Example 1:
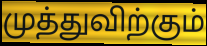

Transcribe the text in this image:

முத்துவிற்கும்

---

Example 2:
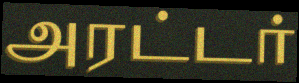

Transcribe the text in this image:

அரட்டர்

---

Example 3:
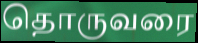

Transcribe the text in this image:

தொருவரை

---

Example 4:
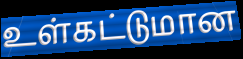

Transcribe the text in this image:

உள்கட்டுமான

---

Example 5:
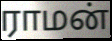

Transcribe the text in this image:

ராமன்